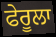
ਫੇਰੂਲਾ